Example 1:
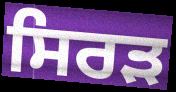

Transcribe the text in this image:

ਸਿਰੜ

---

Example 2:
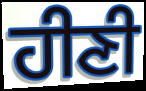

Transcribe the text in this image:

ਹੀਣੀ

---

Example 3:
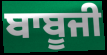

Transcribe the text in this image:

ਬਾਬੂਜੀ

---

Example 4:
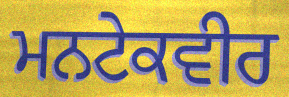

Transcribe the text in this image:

ਮਨਟੇਕਵੀਰ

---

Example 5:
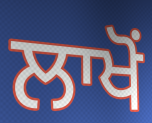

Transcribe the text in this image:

ਲਾਖੋਂ